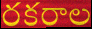
రకరాల